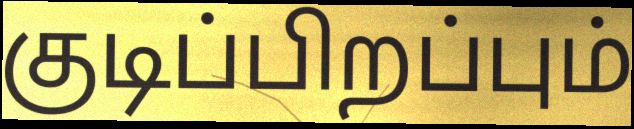
குடிப்பிறப்பும்